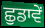
ਛੁਡਾਵੇਂ